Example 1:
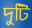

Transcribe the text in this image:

দুটি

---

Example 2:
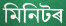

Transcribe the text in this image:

মিনিটৰ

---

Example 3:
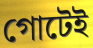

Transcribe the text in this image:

গোটেই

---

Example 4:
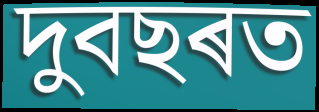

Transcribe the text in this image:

দুবছৰত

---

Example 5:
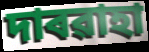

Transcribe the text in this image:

দাৰৱাহা